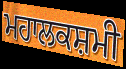
ਮਹਾਲਕਸ਼ਮੀ